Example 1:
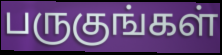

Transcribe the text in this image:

பருகுங்கள்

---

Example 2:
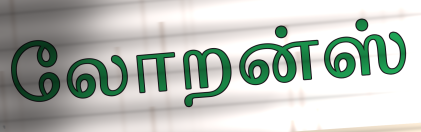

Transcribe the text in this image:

லோறன்ஸ்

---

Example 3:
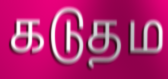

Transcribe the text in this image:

கடுதம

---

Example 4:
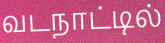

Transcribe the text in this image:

வடநாட்டில்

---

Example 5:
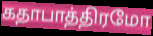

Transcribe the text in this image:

கதாபாத்திரமோ